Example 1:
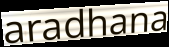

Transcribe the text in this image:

aradhana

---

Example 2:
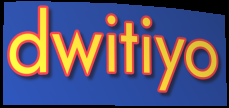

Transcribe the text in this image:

dwitiyo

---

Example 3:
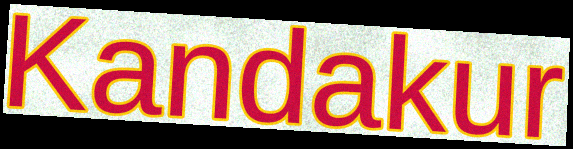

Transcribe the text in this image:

Kandakur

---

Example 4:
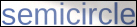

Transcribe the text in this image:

semicircle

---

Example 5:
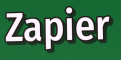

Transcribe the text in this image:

Zapier